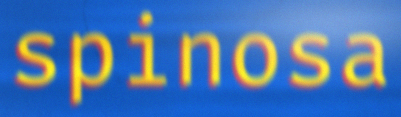
spinosa